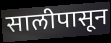
सालीपासून